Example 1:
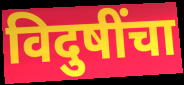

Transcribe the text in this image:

विदुषींचा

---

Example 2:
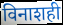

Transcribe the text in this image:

विनाशही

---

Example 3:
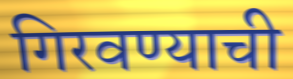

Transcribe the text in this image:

गिरवण्याची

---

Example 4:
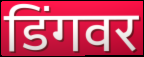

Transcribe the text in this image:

डिंगवर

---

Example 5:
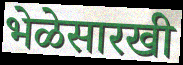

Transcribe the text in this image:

भेळेसारखी